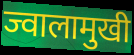
ज्‍वालामुखी